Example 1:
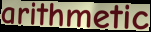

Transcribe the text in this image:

arithmetic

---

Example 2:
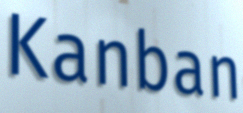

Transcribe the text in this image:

Kanban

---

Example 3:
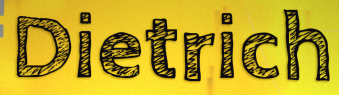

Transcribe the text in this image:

Dietrich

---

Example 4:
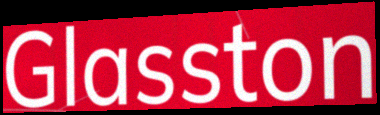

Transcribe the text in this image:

Glasston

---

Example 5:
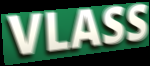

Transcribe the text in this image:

VLASS